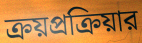
ক্রয়প্রক্রিয়ার